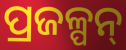
ପ୍ରଜଳ୍ପନ୍